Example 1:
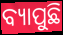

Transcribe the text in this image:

ବ୍ୟାପୁଛି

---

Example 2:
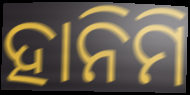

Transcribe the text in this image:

ହାନିମି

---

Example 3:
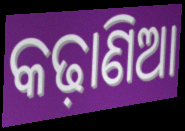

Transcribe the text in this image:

କଢ଼ାଣିଆ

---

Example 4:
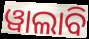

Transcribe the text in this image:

ୱାଲାବି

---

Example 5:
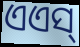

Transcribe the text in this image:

ଏଏସ୍